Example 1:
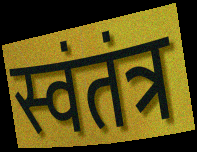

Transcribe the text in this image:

स्वंतंत्र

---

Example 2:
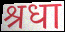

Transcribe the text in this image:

श्रधा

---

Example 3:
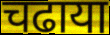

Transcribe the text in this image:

चढाया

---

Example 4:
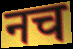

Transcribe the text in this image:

नच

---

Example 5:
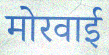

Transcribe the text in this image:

मोरवाई